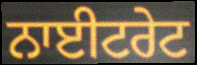
ਨਾਈਟਰੇਟ